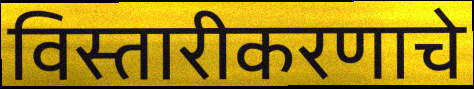
विस्तारीकरणाचे